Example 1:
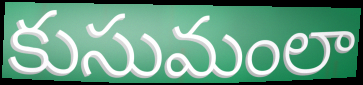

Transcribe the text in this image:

కుసుమంలా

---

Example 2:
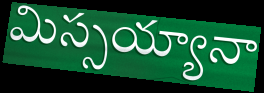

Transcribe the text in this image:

మిస్సయ్యానా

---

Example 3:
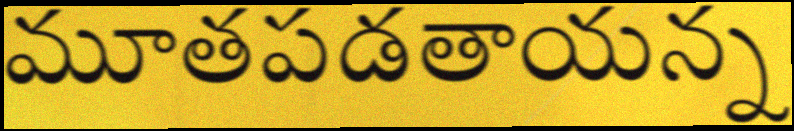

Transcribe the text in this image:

మూతపడతాయన్న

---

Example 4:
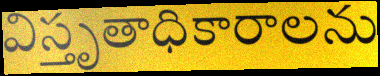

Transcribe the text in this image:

విస్తృతాధికారాలను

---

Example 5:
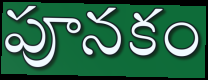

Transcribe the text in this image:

పూనకం